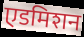
एडमिशन